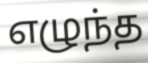
எழுந்த